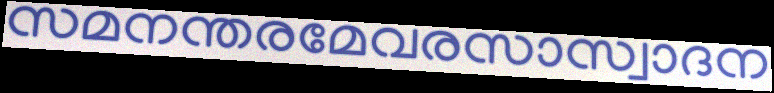
സമനന്തരമേവരസാസ്വാദന